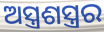
ଅସ୍ତ୍ରଶସ୍ତ୍ରର